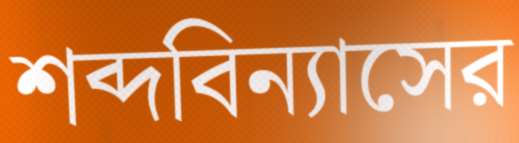
শব্দবিন্যাসের